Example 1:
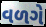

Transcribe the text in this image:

વળગે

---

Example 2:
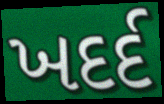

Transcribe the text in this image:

ખદર્દ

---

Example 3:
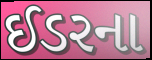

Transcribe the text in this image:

ઈડરના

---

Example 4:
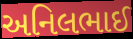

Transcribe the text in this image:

અનિલભાઈ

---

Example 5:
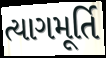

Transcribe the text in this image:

ત્યાગમૂર્તિ